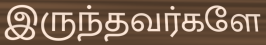
இருந்தவர்களே